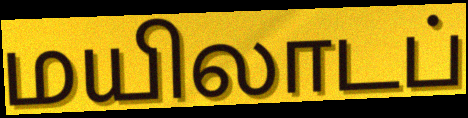
மயிலாடப்